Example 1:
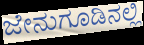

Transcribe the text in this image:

ಜೇನುಗೂಡಿನಲ್ಲಿ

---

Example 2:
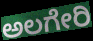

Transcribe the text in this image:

ಅಲಗೇರಿ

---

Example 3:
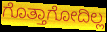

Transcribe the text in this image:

ಗೊತ್ತಾಗೋದಿಲ್ಲ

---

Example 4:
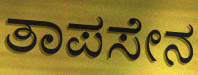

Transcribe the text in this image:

ತಾಪಸೇನ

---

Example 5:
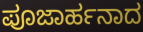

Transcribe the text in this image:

ಪೂಜಾರ್ಹನಾದ